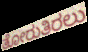
ತೋರುತಿರಲು